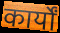
कार्यों